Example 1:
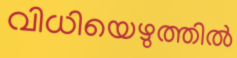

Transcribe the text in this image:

വിധിയെഴുത്തിൽ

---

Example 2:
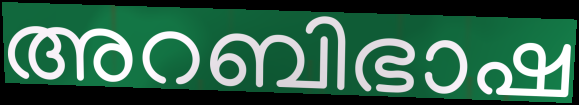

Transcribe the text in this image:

അറബിഭാഷ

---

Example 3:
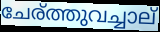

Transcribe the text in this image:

ചേര്ത്തുവച്ചാല്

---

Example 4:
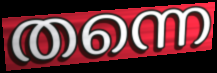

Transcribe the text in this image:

തന്നെ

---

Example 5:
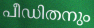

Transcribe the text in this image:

പീഡിതനും